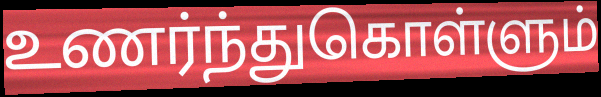
உணர்ந்துகொள்ளும்